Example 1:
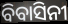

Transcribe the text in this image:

ବିବାସିନୀ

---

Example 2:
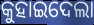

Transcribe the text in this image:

କୁହାଇଦେଲା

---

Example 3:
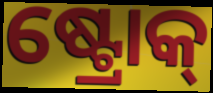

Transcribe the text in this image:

ଷ୍ଟ୍ରୋକ୍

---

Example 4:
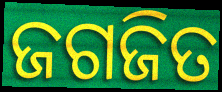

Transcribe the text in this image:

ଜଗଜିତ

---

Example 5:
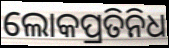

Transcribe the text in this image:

ଲୋକପ୍ରତିନିଧ